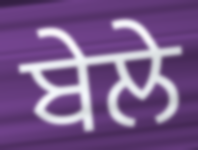
ਬੇਲੇ